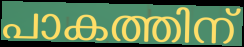
പാകത്തിന്